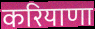
करियाणा